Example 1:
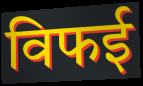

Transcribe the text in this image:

विफई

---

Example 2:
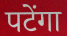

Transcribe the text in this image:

पटेंगा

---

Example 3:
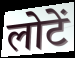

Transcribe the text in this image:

लोटें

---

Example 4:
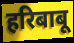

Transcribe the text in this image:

हरिबाबू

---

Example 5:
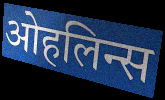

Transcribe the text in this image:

ओहलिन्स